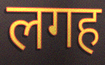
लगह